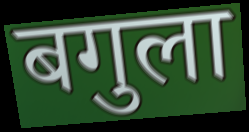
बगुला